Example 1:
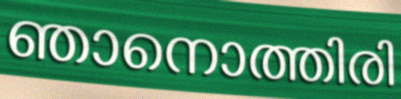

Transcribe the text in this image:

ഞാനൊത്തിരി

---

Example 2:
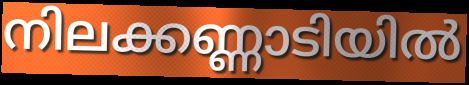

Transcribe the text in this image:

നിലക്കണ്ണാടിയിൽ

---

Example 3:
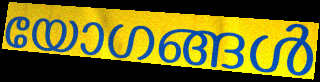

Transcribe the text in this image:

യോഗങ്ങൾ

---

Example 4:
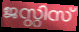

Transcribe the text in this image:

ജസ്റ്റിസ്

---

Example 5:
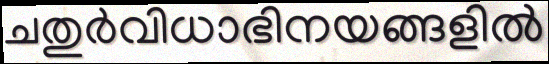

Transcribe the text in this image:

ചതുർവിധാഭിനയങ്ങളിൽ